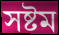
সষ্টম